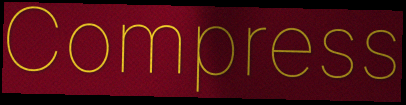
Compress